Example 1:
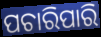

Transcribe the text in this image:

ପଚାରିପାରି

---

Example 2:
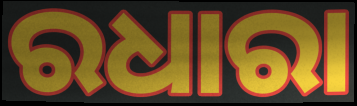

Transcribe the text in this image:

ରଧାରା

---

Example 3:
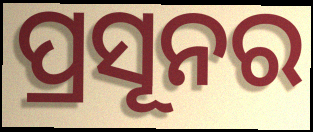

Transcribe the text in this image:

ପ୍ରସୂନର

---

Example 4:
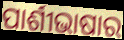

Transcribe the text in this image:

ପାର୍ଶୀଭାଷାର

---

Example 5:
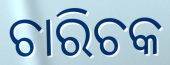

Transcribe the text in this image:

ଚାରିଚକ